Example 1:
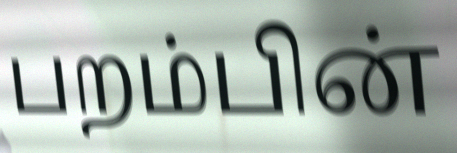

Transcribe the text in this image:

பறம்பின்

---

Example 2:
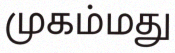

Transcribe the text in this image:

முகம்மது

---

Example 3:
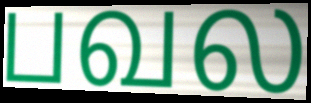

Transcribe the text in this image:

பவல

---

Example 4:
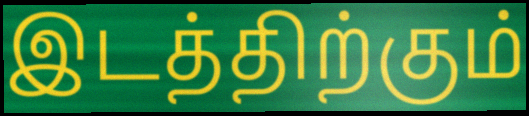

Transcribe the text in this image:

இடத்திற்கும்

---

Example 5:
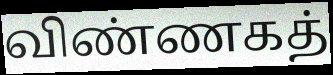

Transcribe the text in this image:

விண்ணகத்